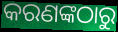
କରଣଙ୍କଠାରୁ